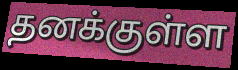
தனக்குள்ள